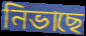
নিভাছে